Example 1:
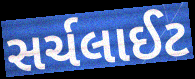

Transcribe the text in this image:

સર્ચલાઈટ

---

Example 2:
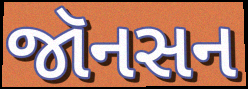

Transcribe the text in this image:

જૉનસન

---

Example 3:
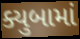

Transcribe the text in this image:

ક્યુબામાં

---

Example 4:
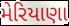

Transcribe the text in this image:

મેરિયાણા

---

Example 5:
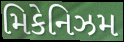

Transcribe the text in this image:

મિકેનિઝમ